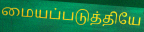
மையப்படுத்தியே